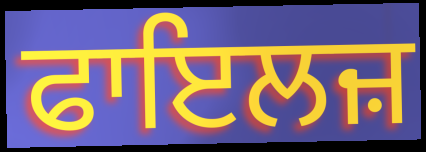
ਫਾਇਲਜ਼